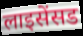
लाइसेंसड